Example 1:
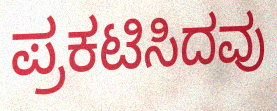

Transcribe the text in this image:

ಪ್ರಕಟಿಸಿದವು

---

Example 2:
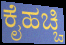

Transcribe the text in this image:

ಕೈಹಚ್ಚಿ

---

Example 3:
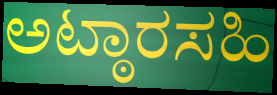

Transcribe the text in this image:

ಅಟ್ಠಾರಸಹಿ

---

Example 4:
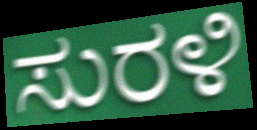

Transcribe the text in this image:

ಸುರಳಿ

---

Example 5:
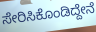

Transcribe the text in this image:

ಸೇರಿಸಿಕೊಂಡಿದ್ದೇನೆ